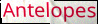
Antelopes